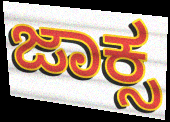
ಜಾಕ್ಸ